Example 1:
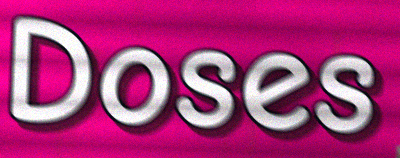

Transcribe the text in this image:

Doses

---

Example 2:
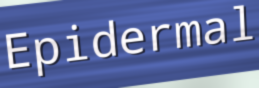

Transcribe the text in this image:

Epidermal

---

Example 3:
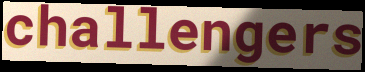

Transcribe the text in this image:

challengers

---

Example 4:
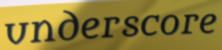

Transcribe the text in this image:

underscore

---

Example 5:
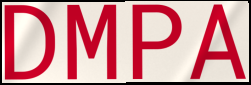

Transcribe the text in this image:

DMPA